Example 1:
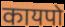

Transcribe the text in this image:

कायपो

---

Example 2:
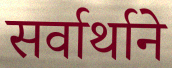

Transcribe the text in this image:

सर्वार्थाने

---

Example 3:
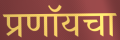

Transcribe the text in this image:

प्रणॉयचा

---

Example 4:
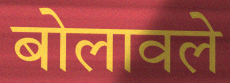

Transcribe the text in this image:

बोलावले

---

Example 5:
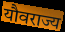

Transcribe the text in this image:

यौवराज्य